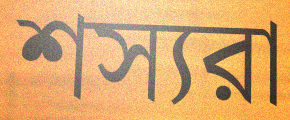
শস্যরা